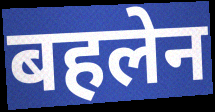
बहलेन